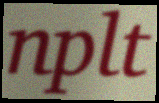
nplt